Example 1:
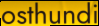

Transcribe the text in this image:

osthundi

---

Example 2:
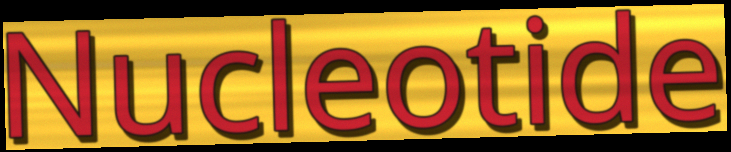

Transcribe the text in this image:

Nucleotide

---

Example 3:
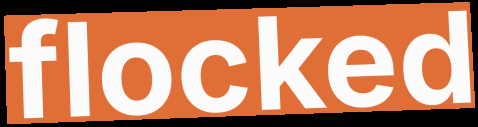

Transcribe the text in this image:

flocked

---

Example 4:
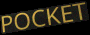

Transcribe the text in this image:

POCKET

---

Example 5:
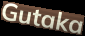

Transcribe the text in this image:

Gutaka